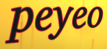
peyeo